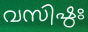
വസിഷ്ഠഃ